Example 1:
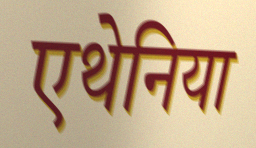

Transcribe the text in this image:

एथेनिया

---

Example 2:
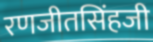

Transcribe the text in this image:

रणजीतसिंहजी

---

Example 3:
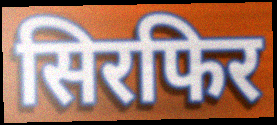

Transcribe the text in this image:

सिरफिर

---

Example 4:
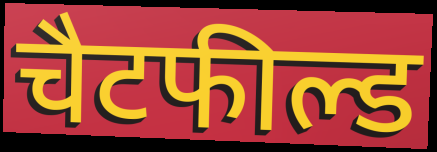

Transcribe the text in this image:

चैटफील्ड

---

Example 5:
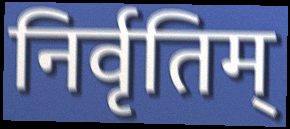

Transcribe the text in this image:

निर्वृतिम्